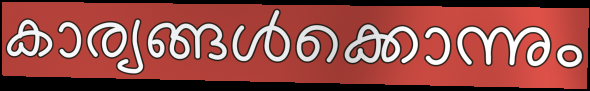
കാര്യങ്ങൾക്കൊന്നും